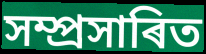
সম্প্ৰসাৰিত